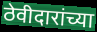
ठेवीदारांच्या